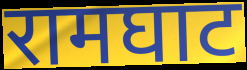
रामघाट